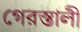
গেরস্তালী